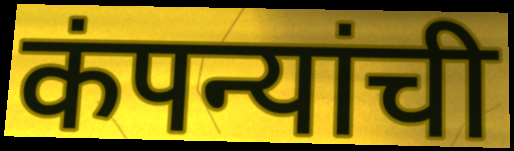
कंपन्यांची